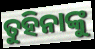
ତୁହିନାଙ୍କୁ